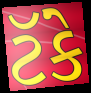
ટૅંકે